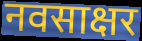
नवसाक्षर